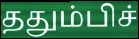
ததும்பிச்